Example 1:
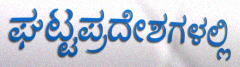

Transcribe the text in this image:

ಘಟ್ಟಪ್ರದೇಶಗಳಲ್ಲಿ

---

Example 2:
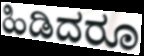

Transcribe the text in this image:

ಹಿಡಿದರೂ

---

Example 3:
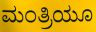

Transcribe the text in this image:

ಮಂತ್ರಿಯೂ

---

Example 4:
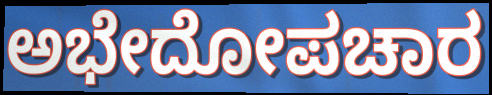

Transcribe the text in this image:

ಅಭೇದೋಪಚಾರ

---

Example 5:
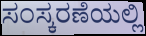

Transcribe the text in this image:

ಸಂಸ್ಕರಣೆಯಲ್ಲಿ